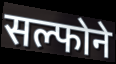
सल्फोने